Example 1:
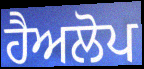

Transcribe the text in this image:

ਹੈਅਲੋਪ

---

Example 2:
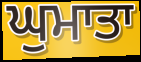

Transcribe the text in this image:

ਘੁਮਾਤਾ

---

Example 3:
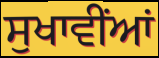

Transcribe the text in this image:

ਸੁਖਾਵੀਂਆਂ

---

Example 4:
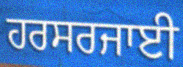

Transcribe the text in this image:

ਹਰਸਰਜਾਈ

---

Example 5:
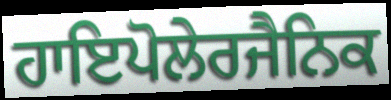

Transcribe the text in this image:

ਹਾਇਪੋਲੇਰਜੈਨਿਕ